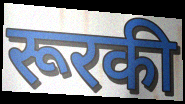
रूरकी